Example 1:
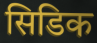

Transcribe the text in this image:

सिडिक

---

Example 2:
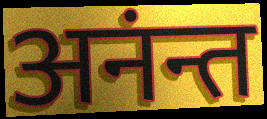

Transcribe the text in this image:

अनंन्त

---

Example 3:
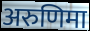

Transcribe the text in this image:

अरुणिमा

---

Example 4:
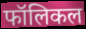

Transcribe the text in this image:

फॉलिकल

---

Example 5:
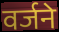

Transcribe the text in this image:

वर्जने